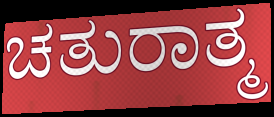
ಚತುರಾತ್ಮ